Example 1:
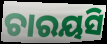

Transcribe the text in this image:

ଚାରୟସି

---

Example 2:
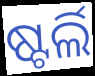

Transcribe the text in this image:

ଷ୍ଟର୍ଲି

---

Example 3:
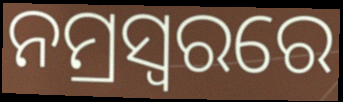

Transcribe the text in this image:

ନମ୍ରସ୍ୱରରେ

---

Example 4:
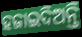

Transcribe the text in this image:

ହଜାଇଦିଅନ୍ତି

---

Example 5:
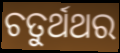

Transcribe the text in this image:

ଚତୁର୍ଥଥର